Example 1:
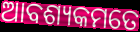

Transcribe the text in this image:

ଆବଶ୍ୟକମତେ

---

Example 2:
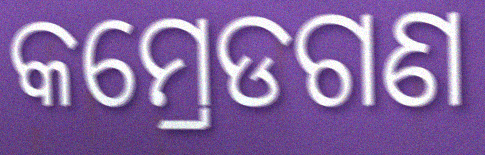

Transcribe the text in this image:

କମ୍ରେଡଗଣ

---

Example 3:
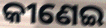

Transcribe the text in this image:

କୀଣେଇ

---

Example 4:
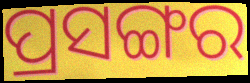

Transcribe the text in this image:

ପ୍ରସଙ୍ଗର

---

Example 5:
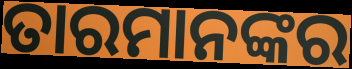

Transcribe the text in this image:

ତାରମାନଙ୍କର